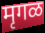
मृगळ